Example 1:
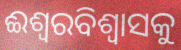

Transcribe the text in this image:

ଈଶ୍ୱରବିଶ୍ଵାସକୁ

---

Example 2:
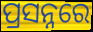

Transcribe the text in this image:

ପ୍ରସନ୍ନରେ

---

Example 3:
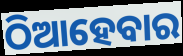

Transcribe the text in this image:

ଠିଆହେବାର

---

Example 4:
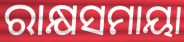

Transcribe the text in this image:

ରାକ୍ଷସମାୟା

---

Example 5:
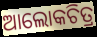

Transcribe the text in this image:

ଆଲୋକଚିତ୍ର